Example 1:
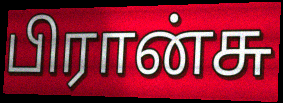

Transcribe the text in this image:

பிரான்சு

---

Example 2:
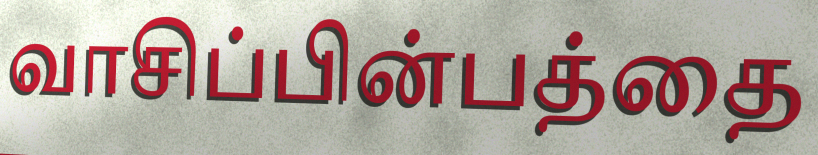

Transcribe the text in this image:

வாசிப்பின்பத்தை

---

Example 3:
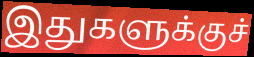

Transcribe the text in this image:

இதுகளுக்குச்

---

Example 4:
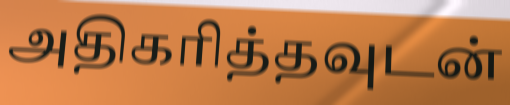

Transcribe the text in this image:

அதிகரித்தவுடன்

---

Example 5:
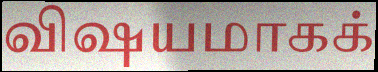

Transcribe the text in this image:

விஷயமாகக்